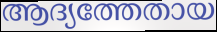
ആദ്യത്തേതായ